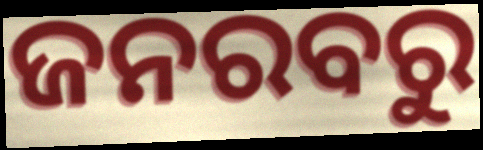
ଜନରବରୁ